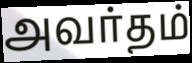
அவர்தம்